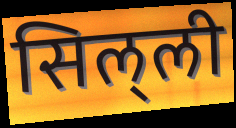
सिल्ली